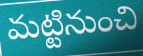
మట్టినుంచి